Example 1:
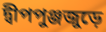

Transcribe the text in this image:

দ্বীপপুঞ্জজুড়ে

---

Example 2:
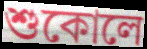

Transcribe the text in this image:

শুকোলে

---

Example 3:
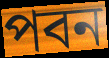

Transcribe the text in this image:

পবন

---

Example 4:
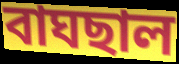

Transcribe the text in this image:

বাঘছাল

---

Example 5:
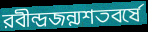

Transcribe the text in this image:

রবীন্দ্রজন্মশতবর্ষে